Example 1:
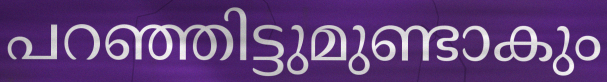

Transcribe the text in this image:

പറഞ്ഞിട്ടുമുണ്ടാകും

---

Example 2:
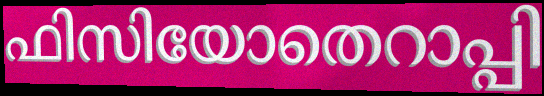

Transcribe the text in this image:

ഫിസിയോതെറാപ്പി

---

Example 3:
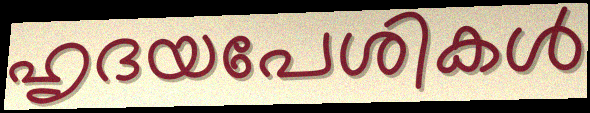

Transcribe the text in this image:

ഹൃദയപേശികൾ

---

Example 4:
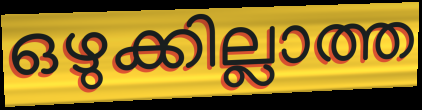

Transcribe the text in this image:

ഒഴുക്കില്ലാത്ത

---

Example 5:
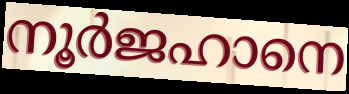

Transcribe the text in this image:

നൂർജഹാനെ